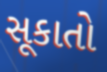
સૂકાતો